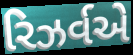
રિઝર્વએ